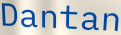
Dantan